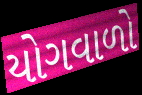
યોગવાળો